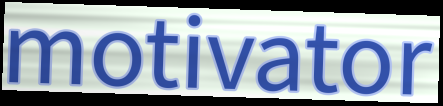
motivator